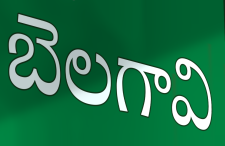
బెలగావి